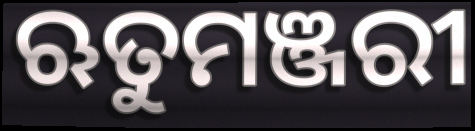
ଋତୁମଞ୍ଜରୀ